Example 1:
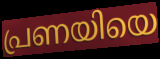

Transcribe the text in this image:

പ്രണയിയെ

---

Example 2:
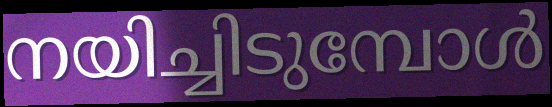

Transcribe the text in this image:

നയിച്ചിടുമ്പോൾ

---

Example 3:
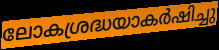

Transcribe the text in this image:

ലോകശ്രദ്ധയാകർഷിച്ചു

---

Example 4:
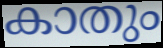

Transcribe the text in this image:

കാതും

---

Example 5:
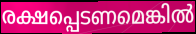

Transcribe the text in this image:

രക്ഷപ്പെടണമെങ്കിൽ